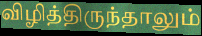
விழித்திருந்தாலும்